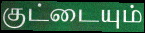
குட்டையும்